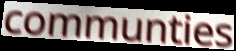
communties